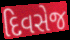
દિવસેજ